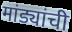
मांड्यांची